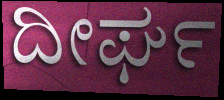
ದೀರ್ಘ